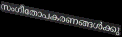
സംഗീതോപകരണങ്ങൾക്കു